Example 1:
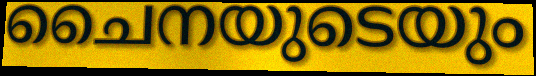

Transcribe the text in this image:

ചൈനയുടെയും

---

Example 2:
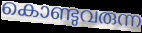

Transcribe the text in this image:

കൊണ്ടുവരുന്ന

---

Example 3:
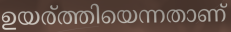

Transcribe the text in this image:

ഉയര്ത്തിയെന്നതാണ്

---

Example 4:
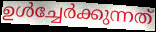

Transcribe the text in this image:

ഉൾച്ചേർക്കുന്നത്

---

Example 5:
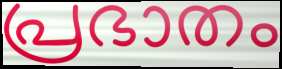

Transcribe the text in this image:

പ്രഭാതം